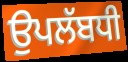
ਉਪਲੱਬਧੀ